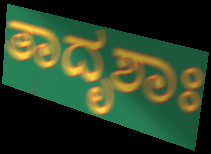
ತಾದೃಶಾಃ